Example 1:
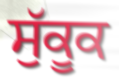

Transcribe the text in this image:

ਸੁੱਕੂਕ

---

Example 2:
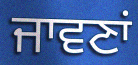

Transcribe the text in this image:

ਜਾਵਣਾਂ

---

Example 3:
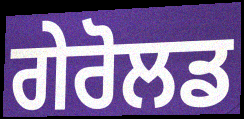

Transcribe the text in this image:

ਗੇਰੋਲਡ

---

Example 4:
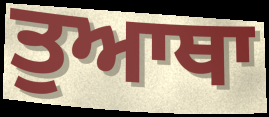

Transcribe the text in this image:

ਤੁਆਥਾ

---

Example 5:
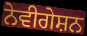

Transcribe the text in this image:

ਨੇਵੀਗੇਸ਼ਨ